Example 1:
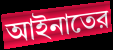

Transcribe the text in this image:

আইনাতের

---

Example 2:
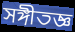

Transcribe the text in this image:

সঙ্গীতজ্ঞ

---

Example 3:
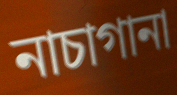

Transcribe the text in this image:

নাচাগানা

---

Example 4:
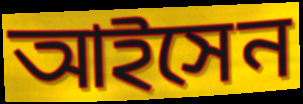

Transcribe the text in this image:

আইসেন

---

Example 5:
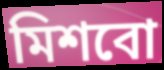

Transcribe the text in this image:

মিশবো